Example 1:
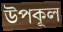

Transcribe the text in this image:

উপকূল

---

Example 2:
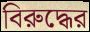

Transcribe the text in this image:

বিরুদ্ধের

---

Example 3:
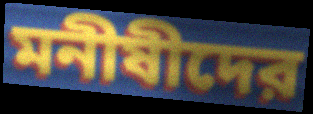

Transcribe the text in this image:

মনীষীদের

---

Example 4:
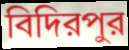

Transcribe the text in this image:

বিদিরপুর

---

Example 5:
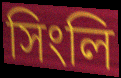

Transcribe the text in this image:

সিংলি